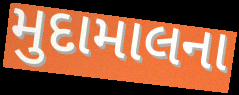
મુદામાલના